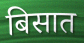
बिसात